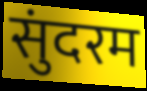
सुंदरम